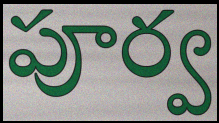
పూర్వ